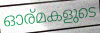
ഓര്മകളുടെ